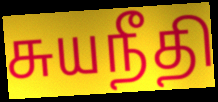
சுயநீதி